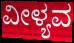
ವೀಳ್ಯವ